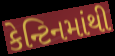
કેન્ટિનમાંથી